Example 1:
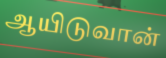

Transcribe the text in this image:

ஆயிடுவான்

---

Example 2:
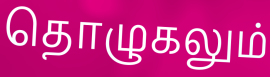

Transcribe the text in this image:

தொழுகலும்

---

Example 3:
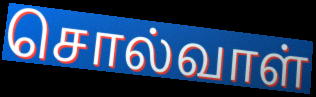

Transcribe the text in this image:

சொல்வாள்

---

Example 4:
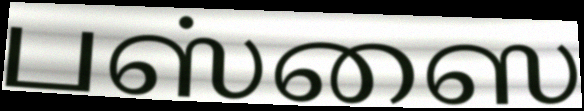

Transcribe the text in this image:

பஸ்ஸை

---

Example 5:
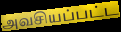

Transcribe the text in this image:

அவசியப்பட்ட